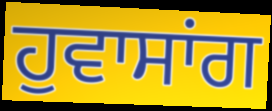
ਹੁਵਾਸਾਂਗ